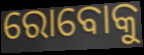
ରୋବୋକୁ